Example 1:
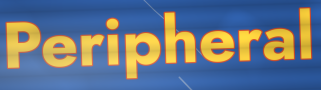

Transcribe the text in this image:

Peripheral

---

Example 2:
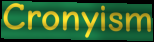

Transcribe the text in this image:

Cronyism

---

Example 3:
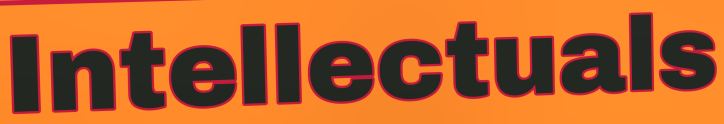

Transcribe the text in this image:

Intellectuals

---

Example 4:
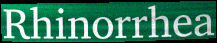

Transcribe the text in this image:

Rhinorrhea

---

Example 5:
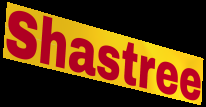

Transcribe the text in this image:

Shastree